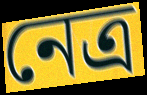
নেত্র